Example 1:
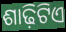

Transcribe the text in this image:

ଶାଢ଼ିଟିଏ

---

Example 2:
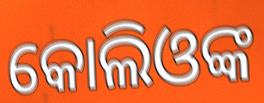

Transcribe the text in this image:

କୋଲିଓଙ୍କ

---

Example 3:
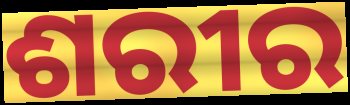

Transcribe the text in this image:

ଶରୀର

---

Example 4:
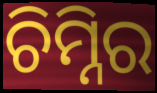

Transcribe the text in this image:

ଚିମ୍ନିର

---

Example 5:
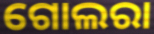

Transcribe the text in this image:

ଗୋଲରା